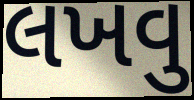
લખવુ